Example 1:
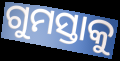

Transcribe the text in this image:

ଗୁମସ୍ତାକୁ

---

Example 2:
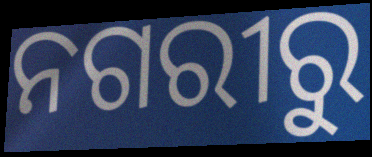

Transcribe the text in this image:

ନଗରୀରୁ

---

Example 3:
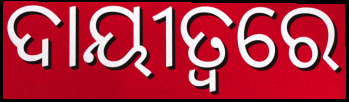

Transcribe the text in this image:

ଦାୟୀତ୍ଵରେ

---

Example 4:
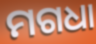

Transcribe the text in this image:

ମଗଧା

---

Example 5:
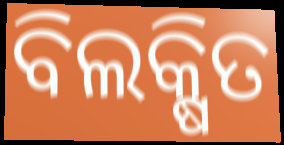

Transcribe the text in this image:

ବିଲକ୍ଷିତ